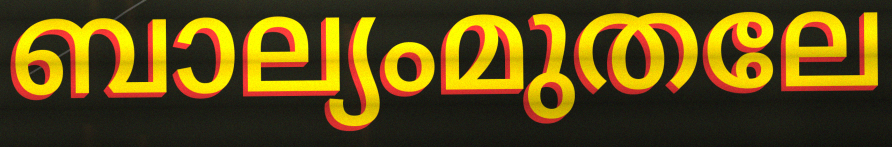
ബാല്യംമുതലേ